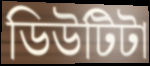
ডিউটিটা